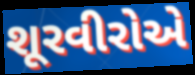
શૂરવીરોએ